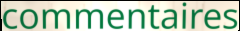
commentaires